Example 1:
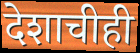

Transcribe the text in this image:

देशाचीही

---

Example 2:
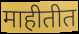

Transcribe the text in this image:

माहीतीत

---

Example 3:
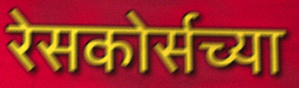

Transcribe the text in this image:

रेसकोर्सच्या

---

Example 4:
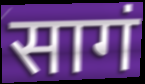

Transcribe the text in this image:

सागं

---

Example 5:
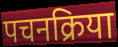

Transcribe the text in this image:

पचनक्रिया